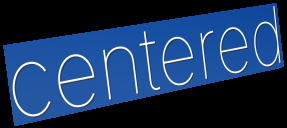
centered